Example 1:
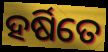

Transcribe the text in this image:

ହର୍ଷିତେ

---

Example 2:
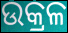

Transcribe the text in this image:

ଉକ୍ରଳ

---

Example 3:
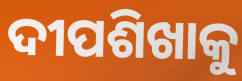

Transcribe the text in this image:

ଦୀପଶିଖାକୁ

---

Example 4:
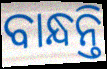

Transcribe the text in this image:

ବାନ୍ଧନ୍ତି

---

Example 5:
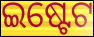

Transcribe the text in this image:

ଇଷ୍ଟେଟ